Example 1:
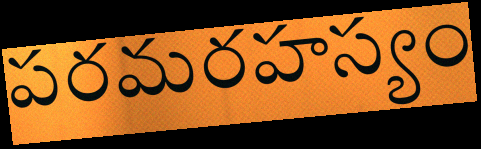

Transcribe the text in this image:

పరమరహస్యం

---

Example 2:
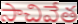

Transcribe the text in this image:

సాచివేత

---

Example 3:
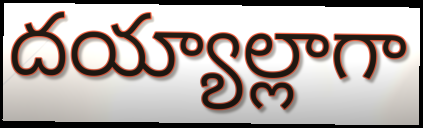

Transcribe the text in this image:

దయ్యాల్లాగా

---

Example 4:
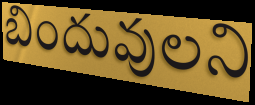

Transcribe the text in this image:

బిందువులని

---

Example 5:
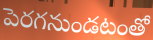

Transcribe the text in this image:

పెరగనుండటంతో